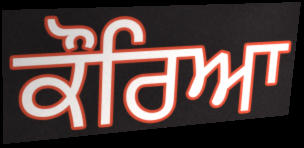
ਕੌਰਿਆ